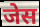
जेस